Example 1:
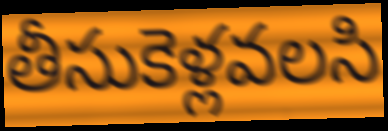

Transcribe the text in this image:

తీసుకెళ్లవలసి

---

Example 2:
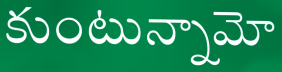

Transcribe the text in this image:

కుంటున్నామో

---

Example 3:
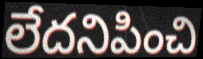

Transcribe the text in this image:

లేదనిపించి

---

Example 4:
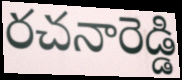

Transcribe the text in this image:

రచనారెడ్డి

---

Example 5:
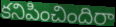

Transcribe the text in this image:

కనిపించిందిరా